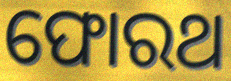
ଫୋରଥ